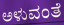
ಅಳುವಂತೆ